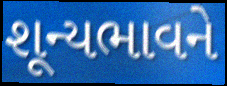
શૂન્યભાવને